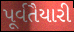
પૂર્વતૈયારી